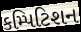
કમ્પિટિશન